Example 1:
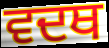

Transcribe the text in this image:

ਵਦਥ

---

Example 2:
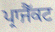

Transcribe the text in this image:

ਪ੍ਰਾਜੈੱਕਟ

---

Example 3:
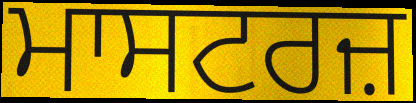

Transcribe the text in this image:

ਮਾਸਟਰਜ਼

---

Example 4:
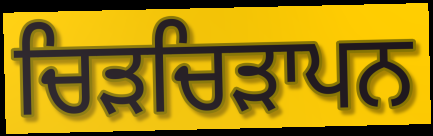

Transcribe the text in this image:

ਚਿੜਚਿੜਾਪਨ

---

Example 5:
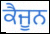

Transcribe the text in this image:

ਕੈਜੂਨ